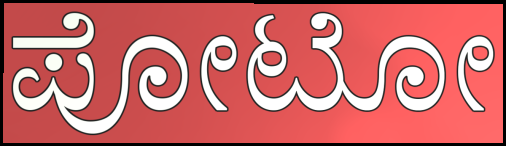
ಪೋಟೋ